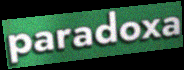
paradoxa